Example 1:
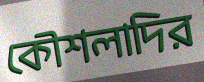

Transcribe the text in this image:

কৌশলাদির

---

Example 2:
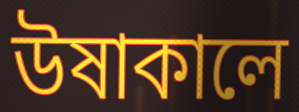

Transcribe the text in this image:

উষাকালে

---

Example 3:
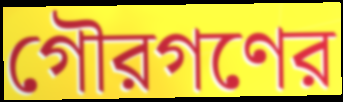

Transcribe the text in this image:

গৌরগণের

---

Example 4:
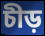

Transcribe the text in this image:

চীড়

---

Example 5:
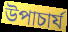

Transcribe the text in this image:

উপাচার্য